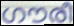
ഗൗരീ